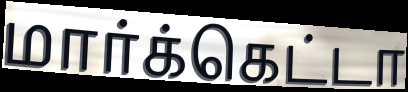
மார்க்கெட்டா